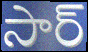
సార్